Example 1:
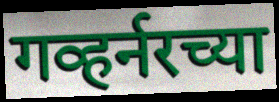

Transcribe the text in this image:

गव्हर्नरच्या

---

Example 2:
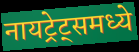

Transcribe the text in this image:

नायट्रेट्समध्ये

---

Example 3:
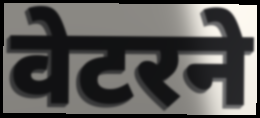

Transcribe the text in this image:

वेटरने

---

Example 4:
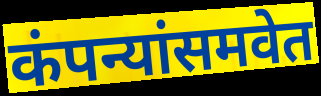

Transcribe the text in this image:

कंपन्यांसमवेत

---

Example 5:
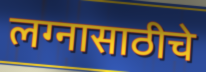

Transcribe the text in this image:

लग्नासाठीचे